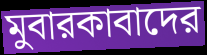
মুবারকাবাদের